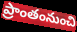
ప్రాంతంనుంచి